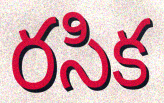
రసిక